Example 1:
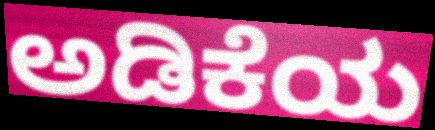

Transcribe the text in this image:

ಅಡಿಕೆಯ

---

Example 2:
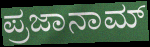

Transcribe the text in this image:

ಪ್ರಜಾನಾಮ್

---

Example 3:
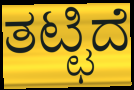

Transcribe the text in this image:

ತಟ್ಟಿದೆ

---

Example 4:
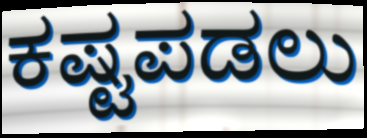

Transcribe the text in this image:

ಕಷ್ಟಪಡಲು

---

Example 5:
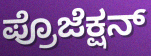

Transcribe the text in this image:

ಪ್ರೊಜೆಕ್ಷನ್